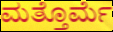
ಮತ್ತೊರ್ಮೆ